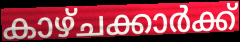
കാഴ്ചക്കാർക്ക്